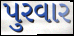
પુરવાર